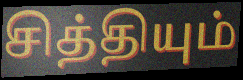
சித்தியும்